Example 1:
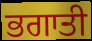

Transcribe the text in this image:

ਭਗਾਤੀ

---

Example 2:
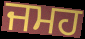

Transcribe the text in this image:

ਜਮਹ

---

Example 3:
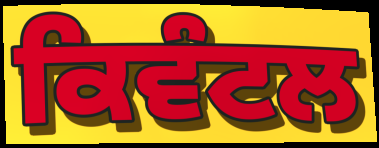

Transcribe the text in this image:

ਕਿਵੰਟਲ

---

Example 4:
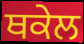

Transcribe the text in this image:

ਥਕੇਲ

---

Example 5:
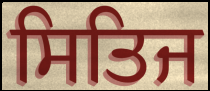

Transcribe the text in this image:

ਸਿਤਿਜ